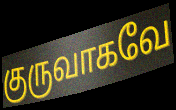
குருவாகவே